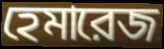
হেমারেজ